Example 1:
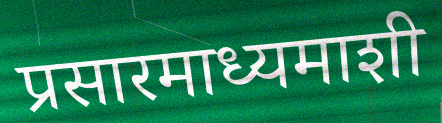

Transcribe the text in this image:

प्रसारमाध्यमाशी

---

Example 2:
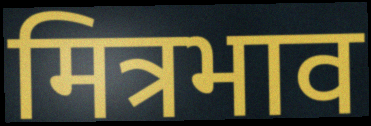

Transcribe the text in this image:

मित्रभाव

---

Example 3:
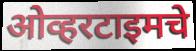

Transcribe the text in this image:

ओव्हरटाइमचे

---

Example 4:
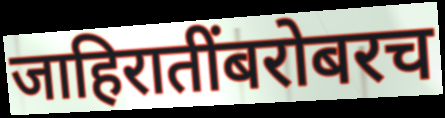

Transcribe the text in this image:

जाहिरातींबरोबरच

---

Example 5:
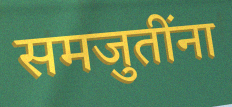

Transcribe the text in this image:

समजुतींना